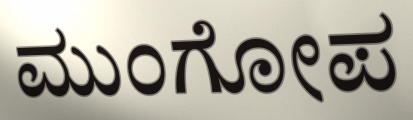
ಮುಂಗೋಪ